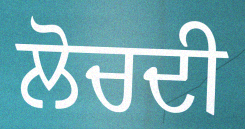
ਲੋਚਦੀ